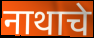
नाथाचे